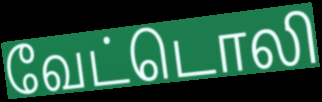
வேட்டொலி